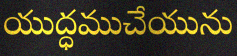
యుద్ధముచేయును